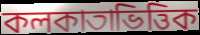
কলকাতাভিত্তিক